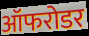
ऑफरोडर